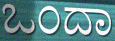
ಒಂದಾ